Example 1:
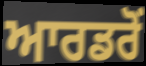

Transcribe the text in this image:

ਆਰਡਰੋਂ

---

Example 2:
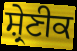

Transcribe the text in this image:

ਸ਼੍ਰੇਣੀਕ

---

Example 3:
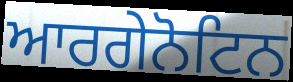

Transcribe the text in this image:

ਆਰਗੇਨੋਟਿਨ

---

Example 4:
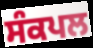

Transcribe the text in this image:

ਸੰਕਪਲ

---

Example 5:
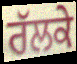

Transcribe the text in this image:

ਰੱਲਕੇ